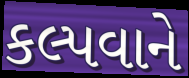
કલ્પવાને